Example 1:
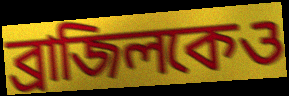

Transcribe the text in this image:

ব্রাজিলকেও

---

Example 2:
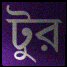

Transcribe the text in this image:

টুর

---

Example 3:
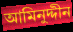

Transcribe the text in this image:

আমিনুদ্দীন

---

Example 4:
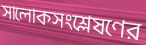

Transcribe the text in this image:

সালোকসংশ্লেষণের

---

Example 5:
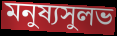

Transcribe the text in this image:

মনুষ্যসুলভ